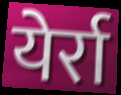
येर्रा